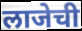
लाजेची